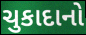
ચુકાદાનો